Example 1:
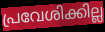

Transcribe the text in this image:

പ്രവേശിക്കില്ല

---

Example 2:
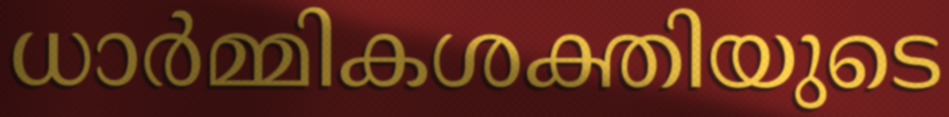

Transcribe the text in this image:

ധാർമ്മികശക്തിയുടെ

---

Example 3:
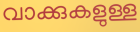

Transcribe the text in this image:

വാക്കുകളുള്ള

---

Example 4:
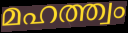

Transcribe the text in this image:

മഹത്ത്വം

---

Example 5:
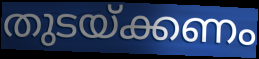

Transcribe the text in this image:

തുടയ്ക്കണം